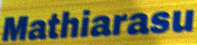
Mathiarasu